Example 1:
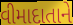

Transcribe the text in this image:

વીમાદાતાને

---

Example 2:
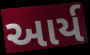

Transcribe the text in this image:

આર્ય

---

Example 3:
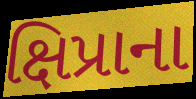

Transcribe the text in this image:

ક્ષિપ્રાના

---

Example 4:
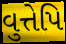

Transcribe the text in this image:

વુત્તેપિ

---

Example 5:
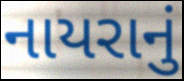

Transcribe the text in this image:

નાયરાનું